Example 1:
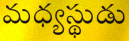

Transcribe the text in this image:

మధ్యస్థుడు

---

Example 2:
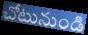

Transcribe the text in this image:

చోటునుండి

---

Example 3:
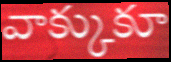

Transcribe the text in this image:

వాక్కుకూ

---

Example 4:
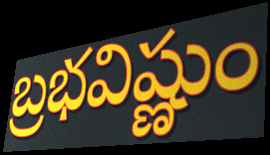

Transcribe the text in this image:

బ్రభవిష్ణుం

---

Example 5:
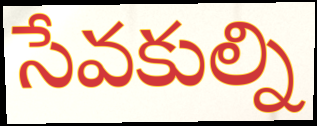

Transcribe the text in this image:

సేవకుల్ని